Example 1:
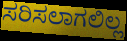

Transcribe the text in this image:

ಸರಿಸಲಾಗಲಿಲ್ಲ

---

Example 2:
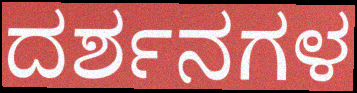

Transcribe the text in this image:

ದರ್ಶನಗಳ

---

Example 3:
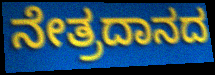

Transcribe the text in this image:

ನೇತ್ರದಾನದ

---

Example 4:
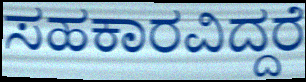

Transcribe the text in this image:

ಸಹಕಾರವಿದ್ದರೆ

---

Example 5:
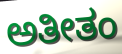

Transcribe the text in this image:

ಅತೀತಂ